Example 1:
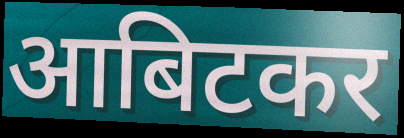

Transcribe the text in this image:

आबिटकर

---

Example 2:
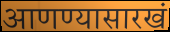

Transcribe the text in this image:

आणण्यासारखं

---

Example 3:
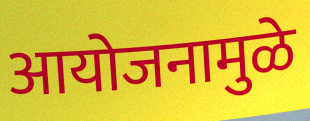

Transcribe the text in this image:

आयोजनामुळे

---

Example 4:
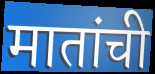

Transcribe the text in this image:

मातांची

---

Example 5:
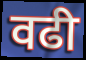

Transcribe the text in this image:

वढी